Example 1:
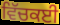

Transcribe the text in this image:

ਵਿੱਚਕਈ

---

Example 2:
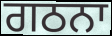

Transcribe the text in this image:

ਗਠਨਾ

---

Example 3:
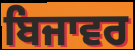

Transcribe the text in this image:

ਬਿਜਾਵਰ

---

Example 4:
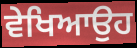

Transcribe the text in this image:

ਵੇਖਿਆਉਹ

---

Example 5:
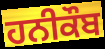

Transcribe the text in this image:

ਹਨੀਕੌਬ